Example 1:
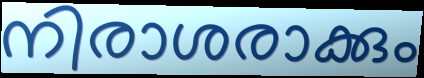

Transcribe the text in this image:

നിരാശരാക്കും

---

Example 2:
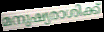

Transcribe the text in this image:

മനുഷ്യരാശിക്ക്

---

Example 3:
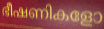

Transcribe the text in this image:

ഭീഷണികളോ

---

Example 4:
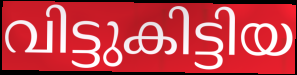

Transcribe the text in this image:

വിട്ടുകിട്ടിയ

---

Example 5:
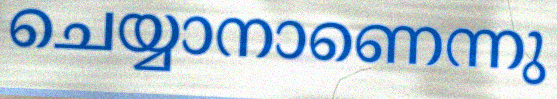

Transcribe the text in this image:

ചെയ്യാനാണെന്നു